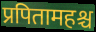
प्रपितामहश्च